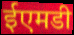
ईएमडी